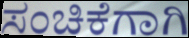
ಸಂಚಿಕೆಗಾಗಿ